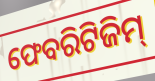
ଫେବରିଟିଜିମ୍